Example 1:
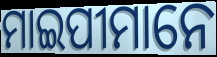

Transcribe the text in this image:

ମାଇପୀମାନେ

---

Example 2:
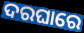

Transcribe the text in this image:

ଦରଘାରେ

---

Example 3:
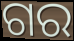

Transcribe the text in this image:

ଗର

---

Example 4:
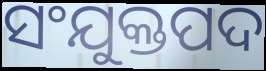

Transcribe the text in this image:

ସଂଯୁକ୍ତପଦ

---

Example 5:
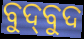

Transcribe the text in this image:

ବୁଦ୍‌ବୁଦ